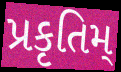
પ્રકૃતિમ્